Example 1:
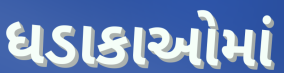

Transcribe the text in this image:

ધડાકાઓમાં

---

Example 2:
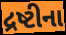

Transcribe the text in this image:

દ્રષ્ટીના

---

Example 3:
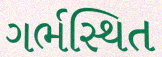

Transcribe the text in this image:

ગર્ભસ્થિત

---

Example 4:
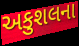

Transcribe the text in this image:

અકુશલના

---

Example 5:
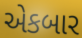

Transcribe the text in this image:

એકબાર